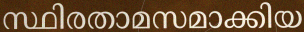
സ്ഥിരതാമസമാക്കിയ